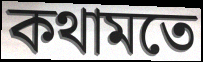
কথামতে